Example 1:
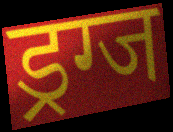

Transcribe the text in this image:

ड्रग्ज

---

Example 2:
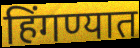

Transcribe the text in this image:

हिंगण्यात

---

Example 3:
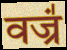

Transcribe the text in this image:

वज्रं॑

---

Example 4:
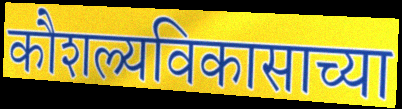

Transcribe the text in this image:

कौशल्यविकासाच्या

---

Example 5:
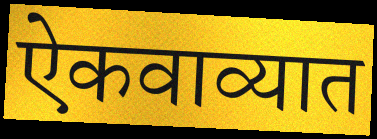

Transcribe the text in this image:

ऐकवाव्यात